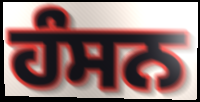
ਹੰਸਨ